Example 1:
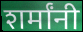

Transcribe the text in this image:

शर्मांनी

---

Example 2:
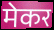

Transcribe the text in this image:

मेकर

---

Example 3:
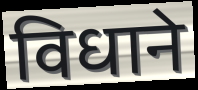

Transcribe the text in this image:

विधाने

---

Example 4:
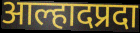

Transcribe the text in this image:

आल्हादप्रदा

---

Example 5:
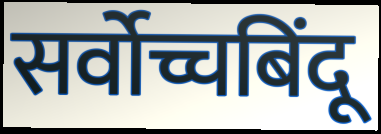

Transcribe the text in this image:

सर्वोच्चबिंदू